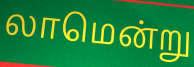
லாமென்று